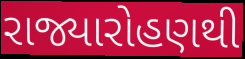
રાજ્યારોહણથી